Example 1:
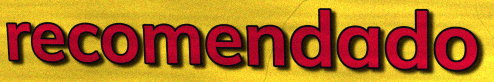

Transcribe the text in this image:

recomendado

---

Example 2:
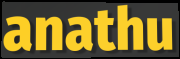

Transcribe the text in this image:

anathu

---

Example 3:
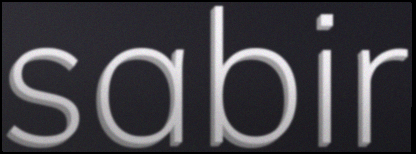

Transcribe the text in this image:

sabir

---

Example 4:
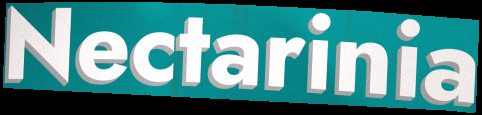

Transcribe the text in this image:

Nectarinia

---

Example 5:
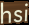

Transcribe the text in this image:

hsi